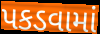
પકડવામાં